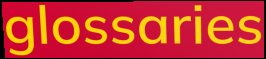
glossaries